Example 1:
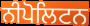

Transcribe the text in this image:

ਨੀਪੋਲਿਟਨ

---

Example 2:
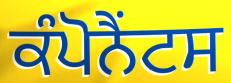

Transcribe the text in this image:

ਕੰਪੋਨੈਂਟਸ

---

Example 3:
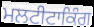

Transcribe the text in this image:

ਮਲਟੀਟਾਕਿੰਗ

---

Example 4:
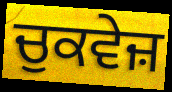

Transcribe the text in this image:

ਚੁਕਵੇਜ਼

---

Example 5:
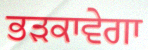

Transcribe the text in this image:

ਭੜਕਾਵੇਗਾ